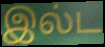
இல்ட